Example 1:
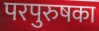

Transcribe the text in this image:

परपुरुषका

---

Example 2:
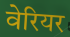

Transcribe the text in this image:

वेरियर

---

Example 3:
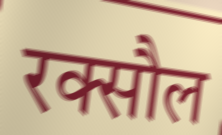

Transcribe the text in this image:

रक्सौल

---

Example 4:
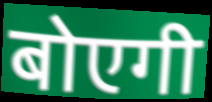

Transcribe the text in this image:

बोएगी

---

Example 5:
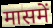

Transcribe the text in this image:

मासमें